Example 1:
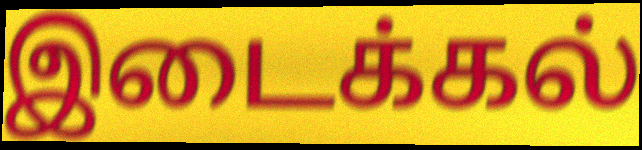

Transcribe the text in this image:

இடைக்கல்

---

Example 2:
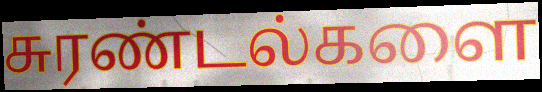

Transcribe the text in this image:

சுரண்டல்களை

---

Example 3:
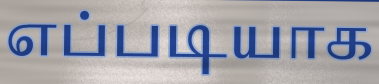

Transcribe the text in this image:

எப்படியாக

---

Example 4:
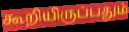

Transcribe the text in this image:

கூறியிருப்பதும்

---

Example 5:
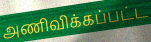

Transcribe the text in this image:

அணிவிக்கப்பட்ட